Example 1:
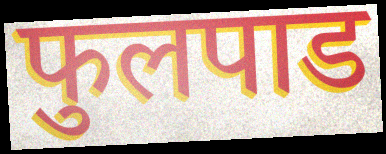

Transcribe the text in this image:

फुलपाड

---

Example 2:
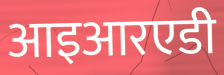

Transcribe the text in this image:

आइआरएडी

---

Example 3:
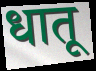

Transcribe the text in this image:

धातू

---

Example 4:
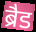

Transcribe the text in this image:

ब्रैड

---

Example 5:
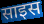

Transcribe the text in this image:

साइस